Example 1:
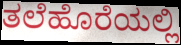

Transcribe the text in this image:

ತಲೆಹೊರೆಯಲ್ಲಿ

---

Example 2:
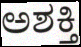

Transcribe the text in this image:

ಅಶಕ್ತಿ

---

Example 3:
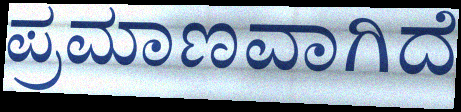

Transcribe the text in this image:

ಪ್ರಮಾಣವಾಗಿದೆ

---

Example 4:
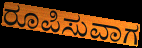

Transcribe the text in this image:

ರೂಪಿಸುವಾಗ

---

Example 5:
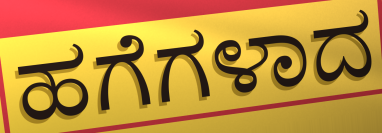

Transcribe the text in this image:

ಹಗೆಗಳಾದ